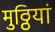
मुठ्ठियां